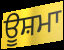
ਊਸ਼ਮਾ